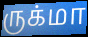
ருக்மா